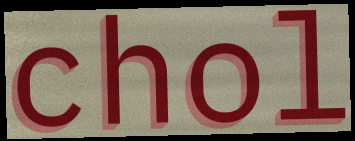
chol